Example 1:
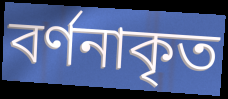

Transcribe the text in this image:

বর্ণনাকৃত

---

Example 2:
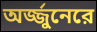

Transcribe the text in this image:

অর্জ্জুনেরে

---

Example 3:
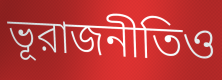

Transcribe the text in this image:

ভূরাজনীতিও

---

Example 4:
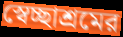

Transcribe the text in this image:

স্বেচ্ছাশ্রমের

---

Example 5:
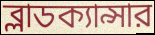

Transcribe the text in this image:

ব্লাডক্যান্সার